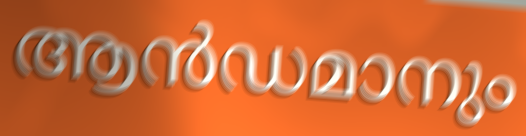
ആൻഡമാനും